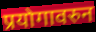
प्रयोगावरुन